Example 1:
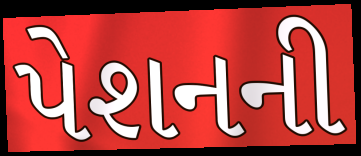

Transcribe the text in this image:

પેશનની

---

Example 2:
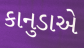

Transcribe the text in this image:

કાનુડાએ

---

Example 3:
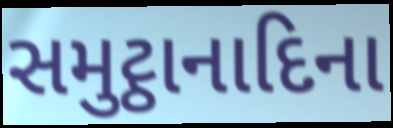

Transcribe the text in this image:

સમુટ્ઠાનાદિના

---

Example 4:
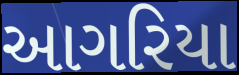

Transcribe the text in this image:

આગરિયા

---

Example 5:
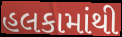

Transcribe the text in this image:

હલકામાંથી